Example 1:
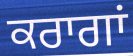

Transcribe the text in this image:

ਕਰਾਗਾਂ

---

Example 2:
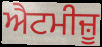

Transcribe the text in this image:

ਐਟਮੀਜ਼ੂ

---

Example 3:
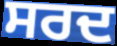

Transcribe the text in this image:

ਸਰਦ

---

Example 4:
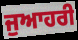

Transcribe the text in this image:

ਜੁਆਹਰੀ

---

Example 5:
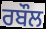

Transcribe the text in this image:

ਰਬੌਲ